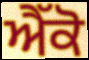
ਐੱਕੋ